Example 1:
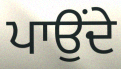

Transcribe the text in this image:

ਪਾਉਂਦੇ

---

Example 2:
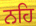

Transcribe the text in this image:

ਨਹਿ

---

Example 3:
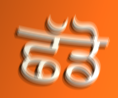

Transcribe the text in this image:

ਛੱਡੋ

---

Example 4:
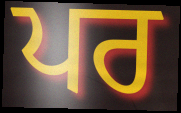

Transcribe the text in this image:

ਪਰ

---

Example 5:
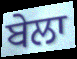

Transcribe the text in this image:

ਬੇਲਾ